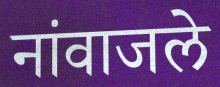
नांवाजले